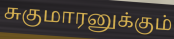
சுகுமாரனுக்கும்